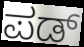
ಪಡ್